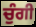
ਚੁੰਗੀ